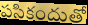
పసికందుతో